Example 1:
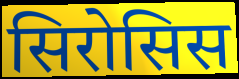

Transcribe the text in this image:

सिरोसिस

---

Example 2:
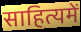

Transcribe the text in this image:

साहित्यमें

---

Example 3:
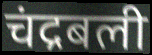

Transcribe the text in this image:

चंद्रबली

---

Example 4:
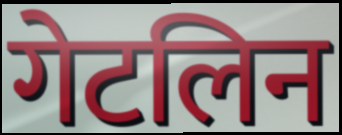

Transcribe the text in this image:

गेटलिन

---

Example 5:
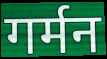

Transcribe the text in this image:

गर्मन